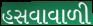
હસવાવાળી